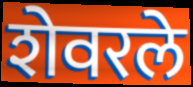
शेवरले